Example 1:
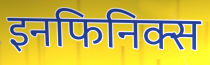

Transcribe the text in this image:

इनफिनिक्स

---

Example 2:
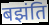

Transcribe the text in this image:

बझंति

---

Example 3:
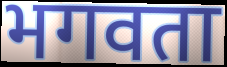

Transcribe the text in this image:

भगवता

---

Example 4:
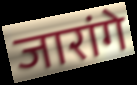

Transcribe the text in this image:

जारांगे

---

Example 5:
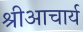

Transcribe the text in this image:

श्रीआचार्य